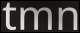
tmn